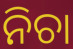
ନିଚା